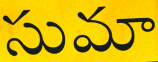
సుమా